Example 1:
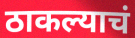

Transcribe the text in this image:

ठाकल्याचं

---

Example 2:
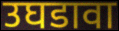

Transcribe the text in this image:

उघडावा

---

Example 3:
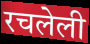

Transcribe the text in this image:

रचलेली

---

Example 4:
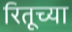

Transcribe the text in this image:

रितूच्या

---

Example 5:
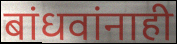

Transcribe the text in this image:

बांधवांनाही